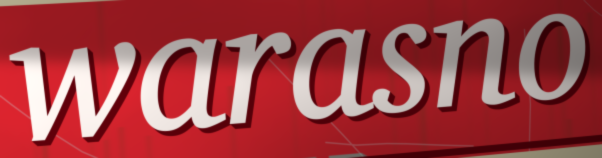
warasno